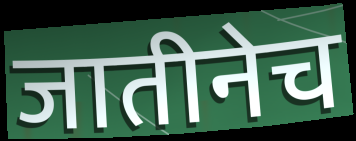
जातीनेच